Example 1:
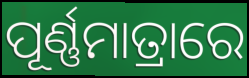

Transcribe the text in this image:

ପୂର୍ଣ୍ଣମାତ୍ରାରେ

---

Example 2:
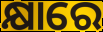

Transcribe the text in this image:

କ୍ଷାରେ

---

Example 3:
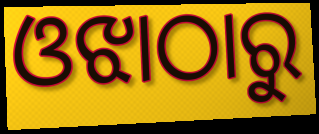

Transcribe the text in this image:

ଓଝାଠାରୁ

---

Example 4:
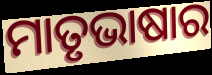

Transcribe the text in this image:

ମାତୃଭାଷାର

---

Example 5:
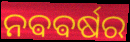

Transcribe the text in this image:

ନଵଵର୍ଷର